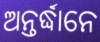
ଅନ୍ତର୍ଦ୍ଧାନେ